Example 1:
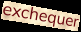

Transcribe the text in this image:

exchequer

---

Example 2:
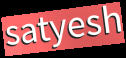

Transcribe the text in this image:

satyesh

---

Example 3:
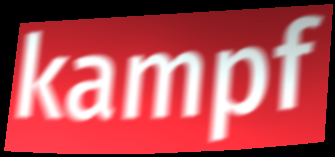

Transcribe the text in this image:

kampf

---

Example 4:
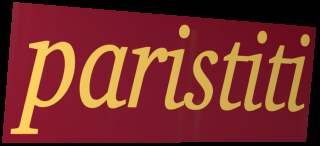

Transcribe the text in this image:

paristiti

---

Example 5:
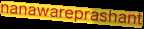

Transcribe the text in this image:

nanawareprashant